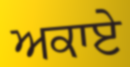
ਅਕਾਏ